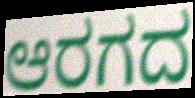
ಆರಗದ